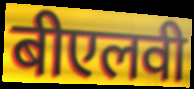
बीएलवी